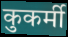
कुकर्मी